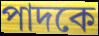
পাদকে